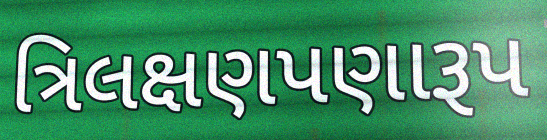
ત્રિલક્ષણપણારૂપ